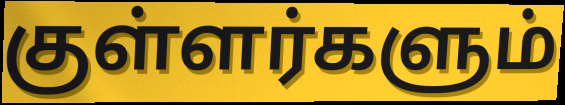
குள்ளர்களும்